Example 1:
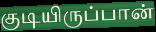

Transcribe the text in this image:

குடியிருப்பான்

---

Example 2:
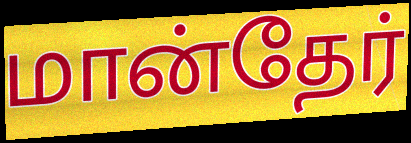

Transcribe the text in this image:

மான்தேர்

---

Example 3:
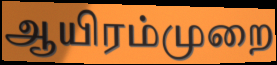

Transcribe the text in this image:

ஆயிரம்முறை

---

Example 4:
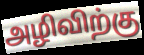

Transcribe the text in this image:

அழிவிற்கு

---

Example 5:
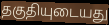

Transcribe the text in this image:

தகுதியுடையது